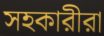
সহকারীরা